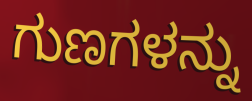
ಗುಣಗಳನ್ನು